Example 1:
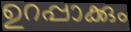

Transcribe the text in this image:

ഉറപ്പാക്കും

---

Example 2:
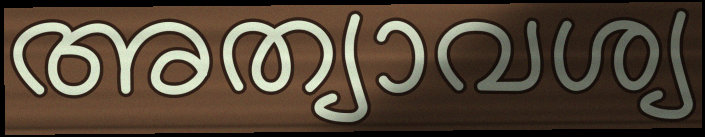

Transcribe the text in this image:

അത്യാവശ്യ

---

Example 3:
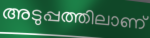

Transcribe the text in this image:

അടുപ്പത്തിലാണ്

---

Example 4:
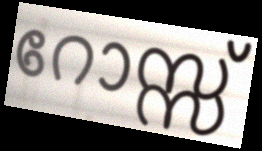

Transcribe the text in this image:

റോസ്സ്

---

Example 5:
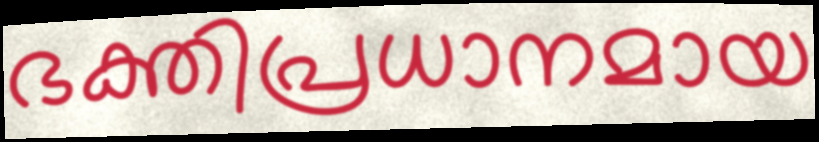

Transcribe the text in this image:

ഭക്തിപ്രധാനമായ